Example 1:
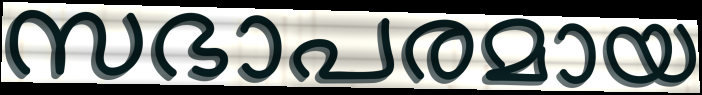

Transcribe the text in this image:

സഭാപരമായ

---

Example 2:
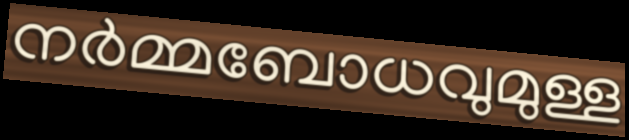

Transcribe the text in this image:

നർമ്മബോധവുമുള്ള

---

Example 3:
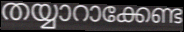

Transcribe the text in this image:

തയ്യാറാക്കേണ്ട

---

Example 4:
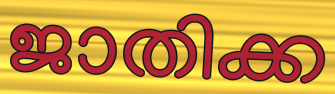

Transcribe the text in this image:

ജാതിക്ക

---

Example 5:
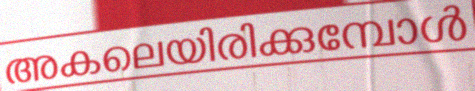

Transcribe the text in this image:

അകലെയിരിക്കുമ്പോൾ